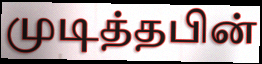
முடித்தபின்